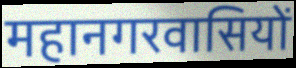
महानगरवासियों